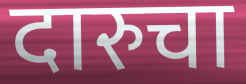
दारुचा